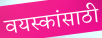
वयस्कांसाठी